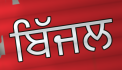
ਬਿੱਜਲ